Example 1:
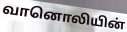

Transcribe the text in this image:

வானொலியின்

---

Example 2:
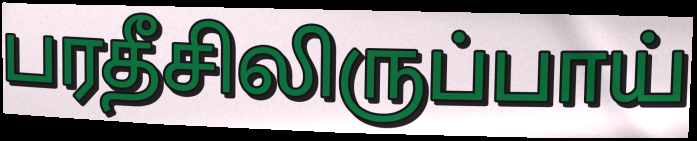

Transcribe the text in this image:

பரதீசிலிருப்பாய்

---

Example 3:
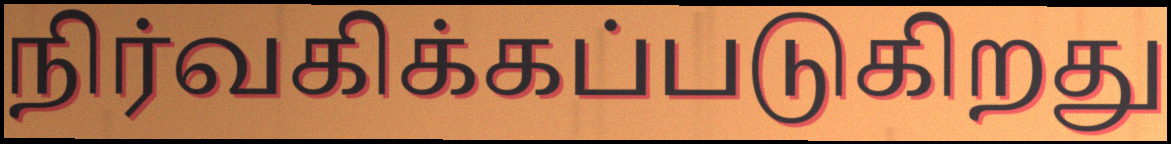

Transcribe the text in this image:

நிர்வகிக்கப்படுகிறது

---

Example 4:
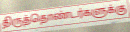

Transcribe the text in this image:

திருத்தொண்டர்களுக்கு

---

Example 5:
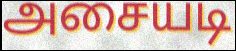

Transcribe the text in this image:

அசையடி